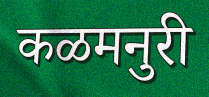
कळमनुरी